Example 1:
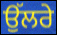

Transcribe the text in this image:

ਉੱਲਰੇ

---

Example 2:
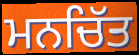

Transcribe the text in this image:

ਮਨਚਿੱਤ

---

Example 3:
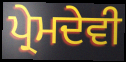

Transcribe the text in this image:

ਪ੍ਰੇਮਦੇਵੀ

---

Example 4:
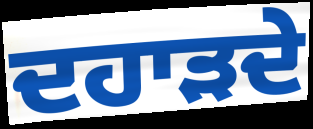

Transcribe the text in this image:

ਦਹਾੜਦੇ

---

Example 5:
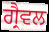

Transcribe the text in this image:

ਗ੍ਰੈਵਲ